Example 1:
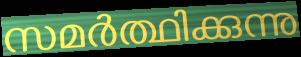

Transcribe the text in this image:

സമർത്ഥിക്കുന്നു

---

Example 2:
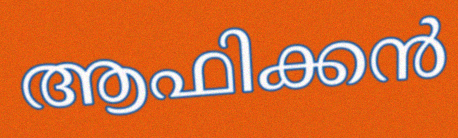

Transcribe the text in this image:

ആഫിക്കൻ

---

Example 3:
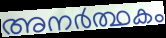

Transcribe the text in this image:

അനർത്ഥകം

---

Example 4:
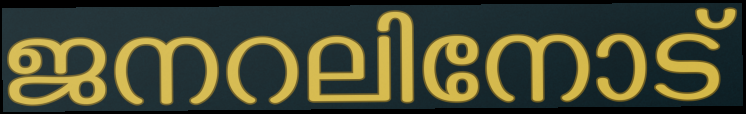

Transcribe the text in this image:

ജനറലിനോട്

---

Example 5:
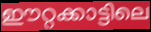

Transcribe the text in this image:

ഈറ്റക്കാട്ടിലെ